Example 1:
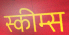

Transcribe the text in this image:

स्कीम्स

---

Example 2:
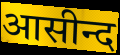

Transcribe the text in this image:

आसीन्द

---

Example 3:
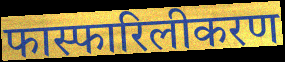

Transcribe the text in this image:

फास्फारिलीकरण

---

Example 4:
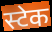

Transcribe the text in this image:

स्टेक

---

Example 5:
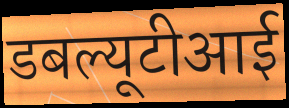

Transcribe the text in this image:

डबल्यूटीआई